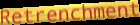
Retrenchment